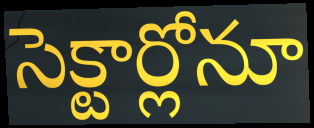
సెక్టార్లోనూ